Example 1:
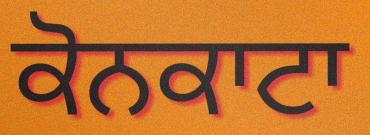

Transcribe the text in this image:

ਕੋਨਕਾਟਾ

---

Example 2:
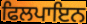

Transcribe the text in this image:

ਫਿਲਪਾਇਨ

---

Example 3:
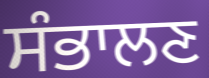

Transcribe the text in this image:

ਸੰਭਾਲਣ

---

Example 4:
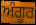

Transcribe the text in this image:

ਅੰਗੂਰ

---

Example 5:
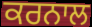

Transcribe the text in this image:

ਕਰਨਾਲ